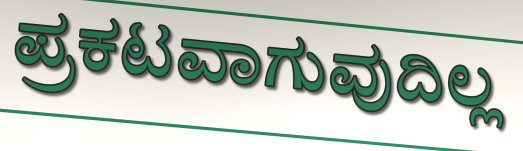
ಪ್ರಕಟವಾಗುವುದಿಲ್ಲ